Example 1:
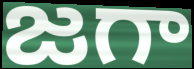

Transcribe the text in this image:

జగా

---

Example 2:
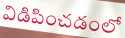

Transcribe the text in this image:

విడిపించడంలో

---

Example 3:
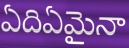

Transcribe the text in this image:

ఏదిఏమైనా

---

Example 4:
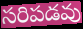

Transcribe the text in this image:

సరిపడవు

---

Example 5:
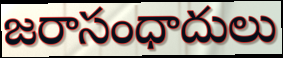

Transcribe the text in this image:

జరాసంధాదులు